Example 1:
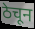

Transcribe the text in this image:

ठेचून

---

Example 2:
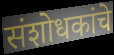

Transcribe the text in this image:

संशोधकांचे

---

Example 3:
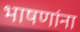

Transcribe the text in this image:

भाषणांना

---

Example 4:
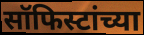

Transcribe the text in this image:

सॉफिस्टांच्या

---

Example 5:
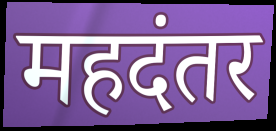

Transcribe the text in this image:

महदंतर